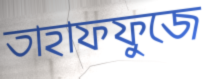
তাহাফফুজে